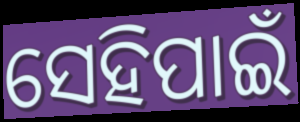
ସେହିପାଇଁ